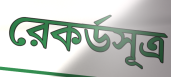
রেকর্ডসূত্র